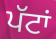
ਪੱਟਾਂ